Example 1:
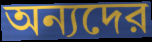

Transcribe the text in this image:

অন্যদের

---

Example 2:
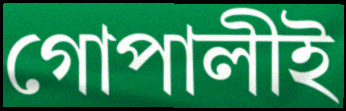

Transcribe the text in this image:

গোপালীই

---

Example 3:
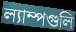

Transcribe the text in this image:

ল্যাম্পগুলি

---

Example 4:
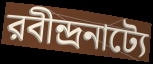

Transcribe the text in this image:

রবীন্দ্রনাট্যে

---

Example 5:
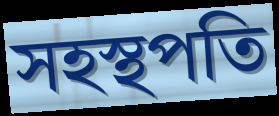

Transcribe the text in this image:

সহস্থপতি